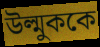
উল্মুককে